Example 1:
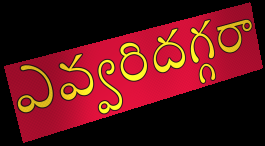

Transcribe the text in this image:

ఎవ్వరిదగ్గరా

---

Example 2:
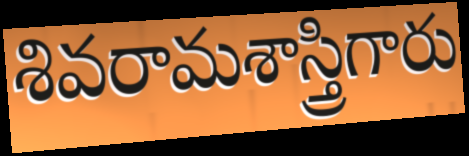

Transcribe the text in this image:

శివరామశాస్త్రిగారు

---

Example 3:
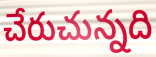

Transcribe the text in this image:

చేరుచున్నది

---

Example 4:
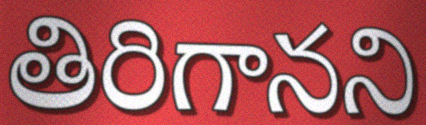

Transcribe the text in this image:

తిరిగానని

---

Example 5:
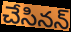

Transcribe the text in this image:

చేసినన్